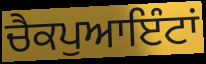
ਚੈਕਪੁਆਇੰਟਾਂ